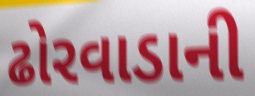
ઢોરવાડાની